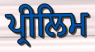
ਪ੍ਰੀਲਿਮ